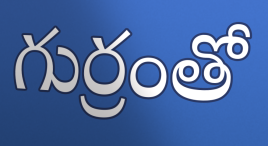
గుర్రంతో